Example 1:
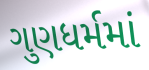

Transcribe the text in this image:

ગુણધર્મમાં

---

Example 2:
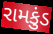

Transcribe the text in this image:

રામકુંડ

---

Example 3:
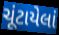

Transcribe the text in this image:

ચૂંટાયેલાં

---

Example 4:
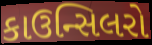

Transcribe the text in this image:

કાઉન્સિલરો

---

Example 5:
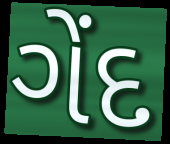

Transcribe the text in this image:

ગેંદ